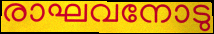
രാഘവനോടു